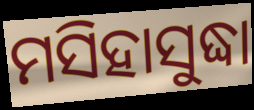
ମସିହାସୁଦ୍ଧା